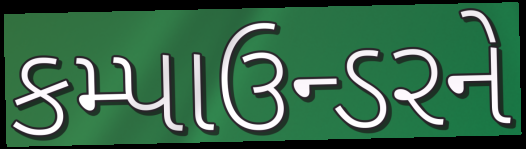
કમ્પાઉન્ડરને